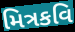
મિત્રકવિ